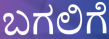
ಬಗಲಿಗೆ